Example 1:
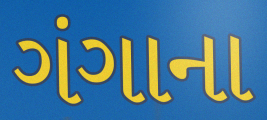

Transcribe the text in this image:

ગંગાના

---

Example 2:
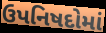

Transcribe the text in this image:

ઉપનિષદોમાં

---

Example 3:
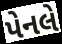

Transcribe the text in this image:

પેનલે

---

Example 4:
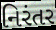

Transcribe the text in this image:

નિરંતર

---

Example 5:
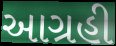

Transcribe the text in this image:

આગ્રહી